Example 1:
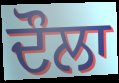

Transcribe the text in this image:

ਦੌਲਾ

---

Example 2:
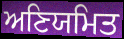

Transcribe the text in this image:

ਅਣਿਯਮਿਤ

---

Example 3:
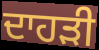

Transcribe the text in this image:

ਦਾਹੜੀ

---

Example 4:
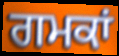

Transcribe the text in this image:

ਗਮਕਾਂ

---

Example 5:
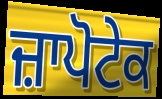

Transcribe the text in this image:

ਜ਼ਾਪੋਟੇਕ